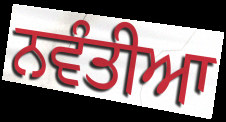
ਨਵੰਤੀਆ